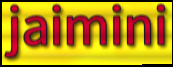
jaimini